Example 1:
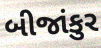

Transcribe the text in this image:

બીજાંકુર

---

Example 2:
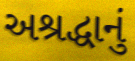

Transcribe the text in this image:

અશ્રદ્ધાનું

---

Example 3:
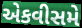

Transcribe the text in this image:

એકવીસમે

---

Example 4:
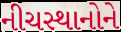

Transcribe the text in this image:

નીચસ્થાનોને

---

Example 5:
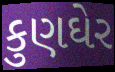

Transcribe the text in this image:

કુણઘેર